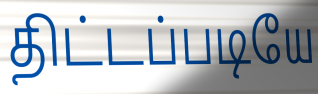
திட்டப்படியே